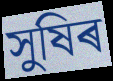
সুষিৰ